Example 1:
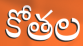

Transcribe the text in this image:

కోతల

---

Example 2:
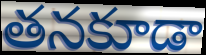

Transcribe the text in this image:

తనకూడా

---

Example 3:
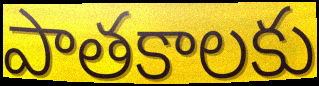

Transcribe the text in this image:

పాతకాలకు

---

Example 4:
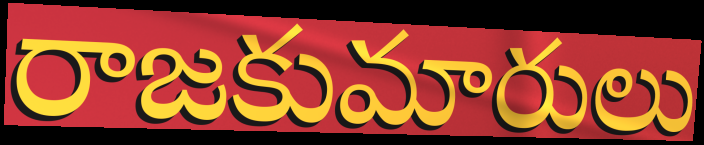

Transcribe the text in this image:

రాజకుమారులు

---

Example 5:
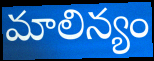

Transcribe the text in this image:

మాలిన్యం